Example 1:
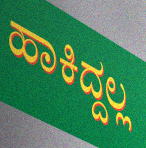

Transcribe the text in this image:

ಹಾಕಿದ್ದಲ್ಲ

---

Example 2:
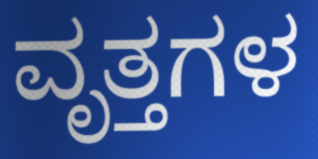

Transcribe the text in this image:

ವೃತ್ತಗಳ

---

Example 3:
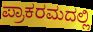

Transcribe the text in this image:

ಪ್ರಾಕರಮದಲ್ಲಿ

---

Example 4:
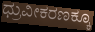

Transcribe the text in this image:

ಧ್ರುವೀಕರಣಕ್ಕೂ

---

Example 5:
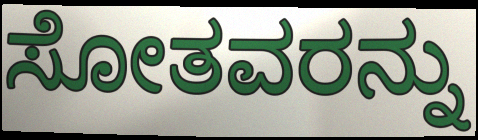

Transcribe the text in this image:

ಸೋತವರನ್ನು